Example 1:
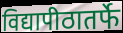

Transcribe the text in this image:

विद्यापीठातर्फे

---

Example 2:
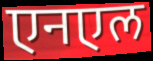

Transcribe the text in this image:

एनएल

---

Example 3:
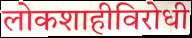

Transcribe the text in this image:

लोकशाहीविरोधी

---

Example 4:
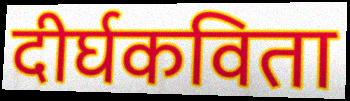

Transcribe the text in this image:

दीर्घकविता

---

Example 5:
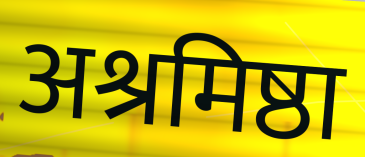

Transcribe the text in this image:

अश्रमिष्ठा